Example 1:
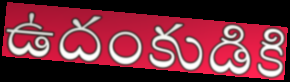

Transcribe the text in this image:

ఉదంకుడికి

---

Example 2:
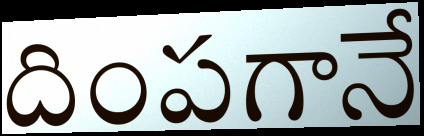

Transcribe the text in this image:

దింపగానే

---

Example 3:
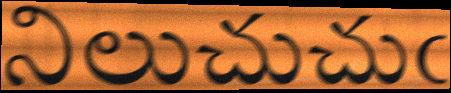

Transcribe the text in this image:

నిలుచుచుఁ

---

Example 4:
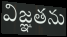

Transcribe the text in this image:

విజ్ఞతను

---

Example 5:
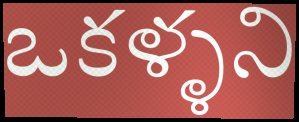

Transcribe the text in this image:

ఒకళ్ళని